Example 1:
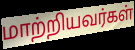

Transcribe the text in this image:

மாற்றியவர்கள்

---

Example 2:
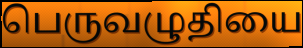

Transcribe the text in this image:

பெருவழுதியை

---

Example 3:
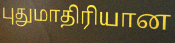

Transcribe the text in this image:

புதுமாதிரியான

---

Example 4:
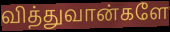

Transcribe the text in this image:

வித்துவான்களே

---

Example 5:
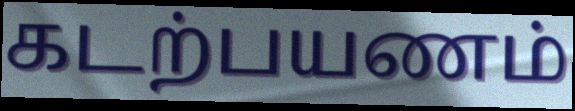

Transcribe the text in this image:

கடற்பயணம்